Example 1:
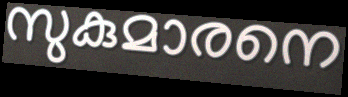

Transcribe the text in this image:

സുകുമാരനെ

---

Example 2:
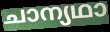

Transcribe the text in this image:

ചാന്യഥാ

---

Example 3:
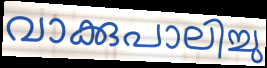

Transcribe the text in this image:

വാക്കുപാലിച്ചു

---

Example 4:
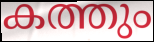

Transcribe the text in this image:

കത്തും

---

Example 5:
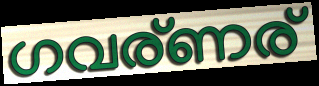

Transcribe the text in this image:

ഗവര്ണര്